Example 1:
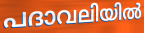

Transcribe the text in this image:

പദാവലിയിൽ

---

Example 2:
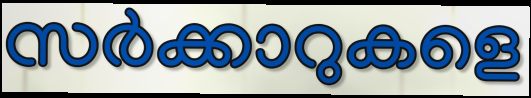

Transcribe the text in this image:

സർക്കാറുകളെ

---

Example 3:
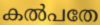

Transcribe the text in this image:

കൽപതേ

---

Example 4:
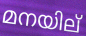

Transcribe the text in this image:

മനയില്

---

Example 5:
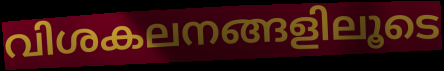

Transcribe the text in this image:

വിശകലനങ്ങളിലൂടെ